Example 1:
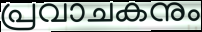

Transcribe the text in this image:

പ്രവാചകനും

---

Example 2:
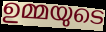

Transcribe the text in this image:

ഉമ്മയുടെ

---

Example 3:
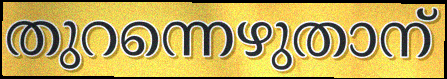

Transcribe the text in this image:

തുറന്നെഴുതാന്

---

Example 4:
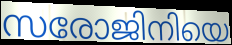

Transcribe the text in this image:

സരോജിനിയെ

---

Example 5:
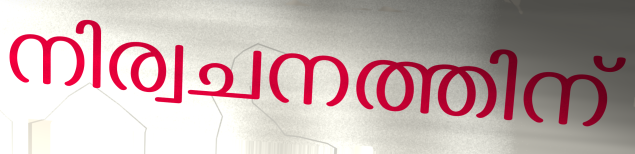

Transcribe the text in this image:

നിര്വചനത്തിന്